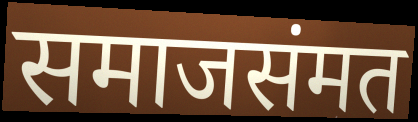
समाजसंमत